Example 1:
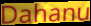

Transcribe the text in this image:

Dahanu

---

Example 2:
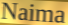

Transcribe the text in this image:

Naima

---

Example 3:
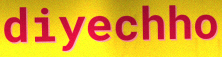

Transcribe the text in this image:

diyechho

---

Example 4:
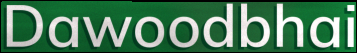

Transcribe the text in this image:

Dawoodbhai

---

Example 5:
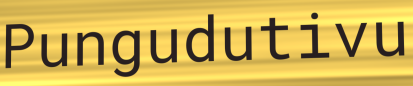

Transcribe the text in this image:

Pungudutivu